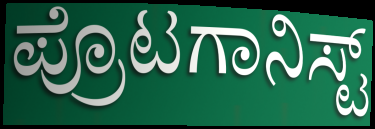
ಪ್ರೊಟಗಾನಿಸ್ಟ್